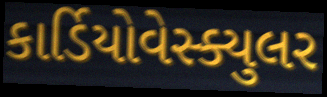
કાર્ડિયોવેસ્ક્યુલર